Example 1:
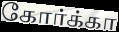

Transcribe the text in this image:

கோர்க்கா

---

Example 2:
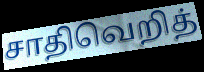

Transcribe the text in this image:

சாதிவெறித்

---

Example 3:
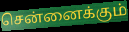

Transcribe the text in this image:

சென்னைக்கும்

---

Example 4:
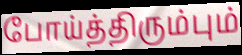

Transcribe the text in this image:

போய்த்திரும்பும்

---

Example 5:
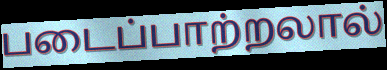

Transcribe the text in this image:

படைப்பாற்றலால்